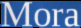
Mora